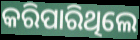
କରିପାରିଥିଲେ